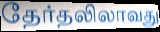
தேர்தலிலாவது